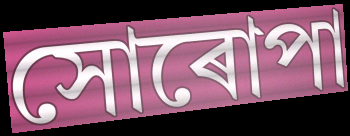
সোৰোপা